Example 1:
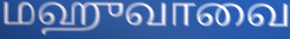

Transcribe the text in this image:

மஹுவாவை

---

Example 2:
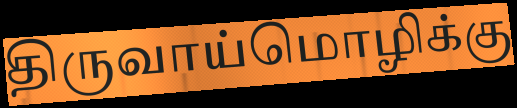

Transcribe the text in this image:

திருவாய்மொழிக்கு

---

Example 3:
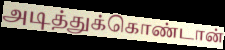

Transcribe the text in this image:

அடித்துக்கொண்டான்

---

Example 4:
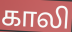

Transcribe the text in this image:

காலி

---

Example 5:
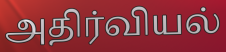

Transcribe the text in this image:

அதிர்வியல்